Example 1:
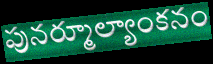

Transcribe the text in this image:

పునర్మూల్యాంకనం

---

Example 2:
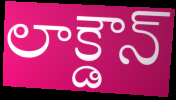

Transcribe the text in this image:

లాక్డౌన్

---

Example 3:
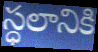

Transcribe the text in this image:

స్ధలానికి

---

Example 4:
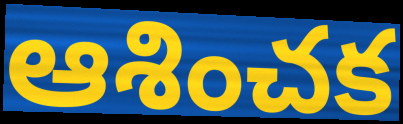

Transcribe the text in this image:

ఆశించక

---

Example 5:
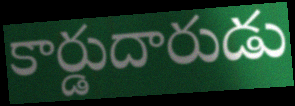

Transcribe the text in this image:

కార్డుదారుడు